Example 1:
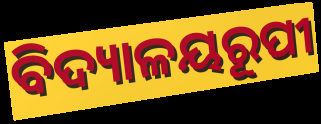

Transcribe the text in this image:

ବିଦ୍ୟାଳୟରୂପୀ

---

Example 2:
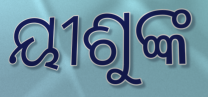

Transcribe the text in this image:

ୟୀଶୁଙ୍କ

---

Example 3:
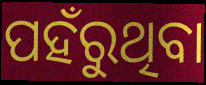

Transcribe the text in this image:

ପହଁରୁଥିବା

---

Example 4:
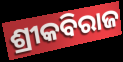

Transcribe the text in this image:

ଶ୍ରୀକବିରାଜ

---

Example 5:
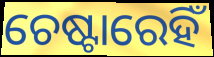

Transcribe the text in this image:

ଚେଷ୍ଟାରେହିଁ